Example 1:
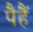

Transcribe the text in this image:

पैहैं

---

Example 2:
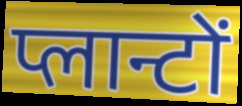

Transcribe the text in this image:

प्लान्टों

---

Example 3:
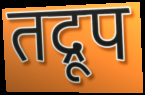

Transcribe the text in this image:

तद्रूप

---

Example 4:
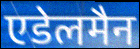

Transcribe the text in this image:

एडेलमैन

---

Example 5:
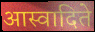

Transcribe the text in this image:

आस्वादिते